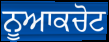
ਨੂਆਕਚੋਟ